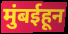
मुंबईहून